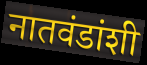
नातवंडांशी